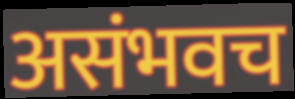
असंभवच